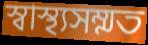
স্বাস্থ্যসম্মত